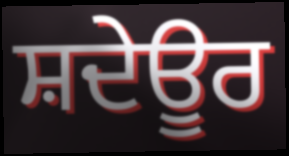
ਸ਼ਦੇਊਰ